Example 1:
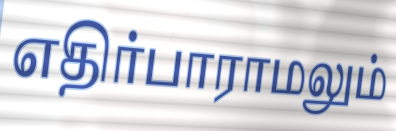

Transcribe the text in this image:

எதிர்பாராமலும்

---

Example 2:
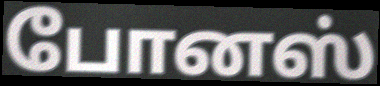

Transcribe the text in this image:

போனஸ்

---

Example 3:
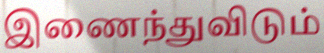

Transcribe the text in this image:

இணைந்துவிடும்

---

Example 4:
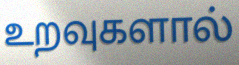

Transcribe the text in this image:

உறவுகளால்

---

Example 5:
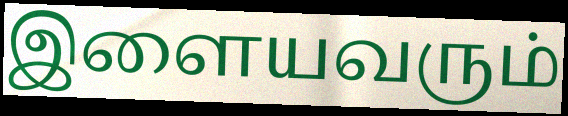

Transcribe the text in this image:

இளையவரும்